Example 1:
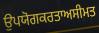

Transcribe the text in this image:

ਉਪਯੋਗਕਰਤਾਅਸੀਮਤ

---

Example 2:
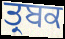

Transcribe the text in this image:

ਤ੍ਰਬਕ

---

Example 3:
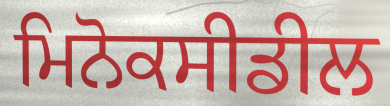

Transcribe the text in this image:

ਮਿਨੋਕਸੀਡੀਲ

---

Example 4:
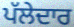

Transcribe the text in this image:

ਪੱਲੇਦਾਰ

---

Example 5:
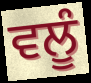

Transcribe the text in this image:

ਵਲੂੰ